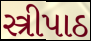
સ્ત્રીપાઠ